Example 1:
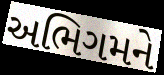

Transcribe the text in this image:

અભિગમને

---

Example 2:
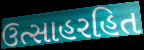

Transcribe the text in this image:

ઉત્સાહરહિત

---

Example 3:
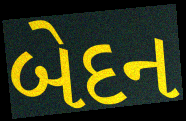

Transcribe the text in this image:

બેદન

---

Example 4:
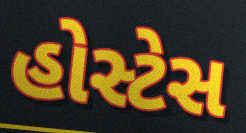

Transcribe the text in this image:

હોસ્ટેસ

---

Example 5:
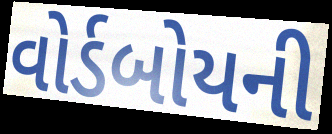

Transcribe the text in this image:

વોર્ડબોયની